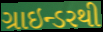
ગ્રાઇન્ડરથી